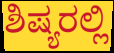
ಶಿಷ್ಯರಲ್ಲಿ